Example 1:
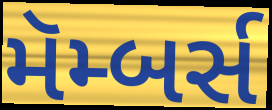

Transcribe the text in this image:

મૅમ્બર્સ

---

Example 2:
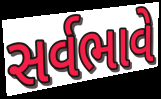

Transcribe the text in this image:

સર્વભાવે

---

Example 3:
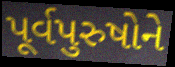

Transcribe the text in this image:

પૂર્વપુરુષોને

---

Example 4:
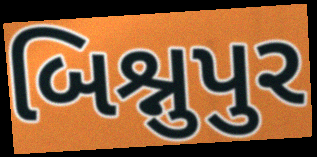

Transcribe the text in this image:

બિશ્નુપુર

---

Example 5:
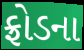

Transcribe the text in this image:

ફ્રોડના